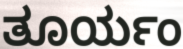
ತೂರ್ಯಂ